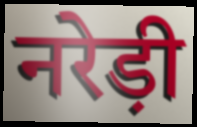
नरेड़ी